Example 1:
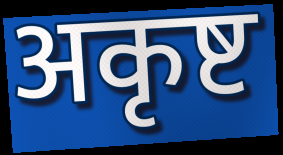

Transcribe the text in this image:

अकृष्ट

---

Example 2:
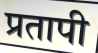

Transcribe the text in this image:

प्रतापी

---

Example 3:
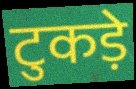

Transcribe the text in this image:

टुकड़े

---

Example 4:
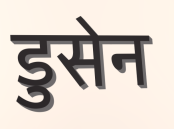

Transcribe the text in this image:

डुसेन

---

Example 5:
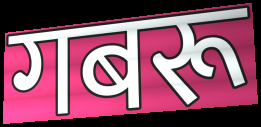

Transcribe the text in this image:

गबरू